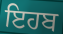
ਇਹਬ